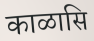
काळासि